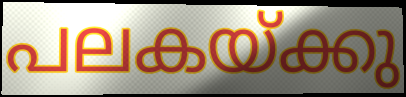
പലകയ്ക്കു